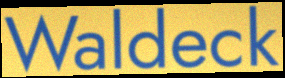
Waldeck